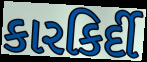
કારકિર્દી